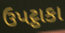
ઉપટ્ઠાકા